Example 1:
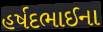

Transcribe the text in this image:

હર્ષદભાઈના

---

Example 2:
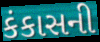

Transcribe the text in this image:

કંકાસની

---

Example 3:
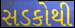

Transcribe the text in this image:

સડકોથી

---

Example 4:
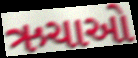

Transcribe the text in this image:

ઋચાઓ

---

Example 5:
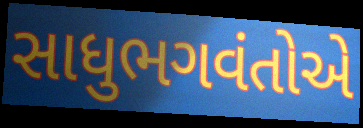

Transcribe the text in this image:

સાધુભગવંતોએ